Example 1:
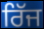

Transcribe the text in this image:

ਰਿੱਜ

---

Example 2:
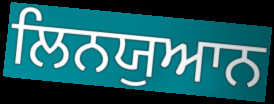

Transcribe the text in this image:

ਲਿਨਯੁਆਨ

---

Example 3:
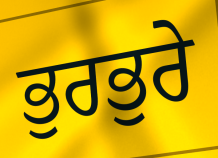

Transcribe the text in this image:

ਭੁਰਭੁਰੇ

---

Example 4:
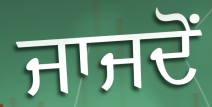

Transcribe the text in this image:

ਜਾਜਦੋਂ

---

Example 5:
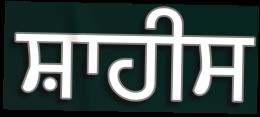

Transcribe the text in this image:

ਸ਼ਾਹੀਸ